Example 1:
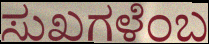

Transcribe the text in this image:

ಸುಖಗಳೆಂಬ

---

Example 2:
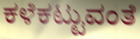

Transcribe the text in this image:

ಕಳೆಕಟ್ಟುವಂತೆ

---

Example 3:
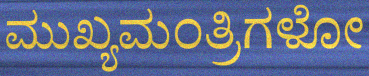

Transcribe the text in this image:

ಮುಖ್ಯಮಂತ್ರಿಗಳೋ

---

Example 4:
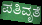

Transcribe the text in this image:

ಪತಿವೃತೆ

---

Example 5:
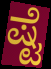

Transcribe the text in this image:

ಷ್ಟೆ